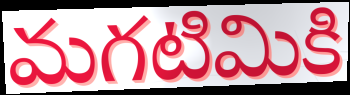
మగటిమికి